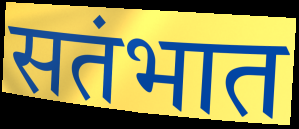
सतंभात